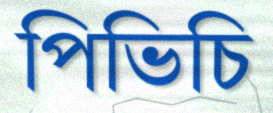
পিভিচি